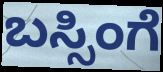
ಬಸ್ಸಿಂಗೆ